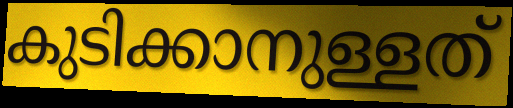
കുടിക്കാനുള്ളത്